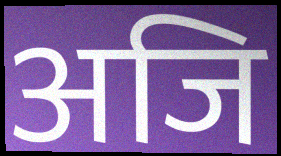
अजि